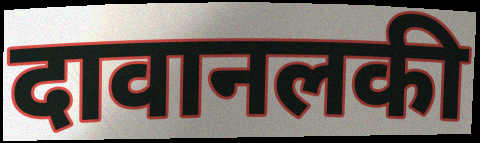
दावानलकी